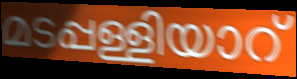
മടപ്പള്ളിയാറ്